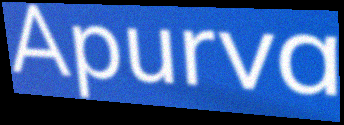
Apurva